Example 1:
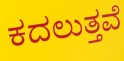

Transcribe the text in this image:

ಕದಲುತ್ತವೆ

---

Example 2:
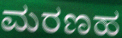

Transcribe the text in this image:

ಮರಣಹ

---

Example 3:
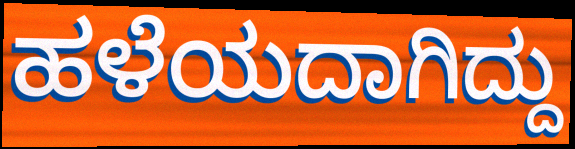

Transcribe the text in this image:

ಹಳೆಯದಾಗಿದ್ದು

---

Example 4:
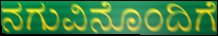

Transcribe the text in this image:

ನಗುವಿನೊಂದಿಗೆ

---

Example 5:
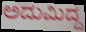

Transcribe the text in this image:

ಅದುಮಿದ್ದ